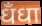
धँधा